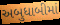
અબુધાબીમાં